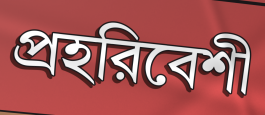
প্রহরিবেশী